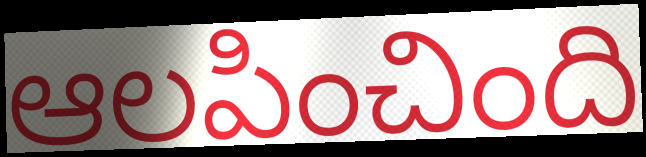
ఆలపించింది